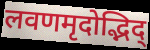
लवणमृदोद्भिद्